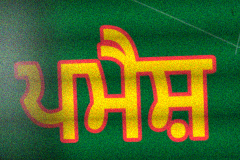
ਪਮੈਸ਼